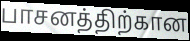
பாசனத்திற்கான